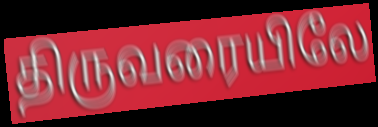
திருவரையிலே